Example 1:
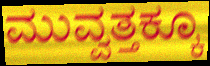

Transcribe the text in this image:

ಮುವ್ವತ್ತಕ್ಕೂ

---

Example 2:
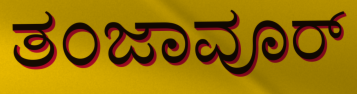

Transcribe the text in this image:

ತಂಜಾವೂರ್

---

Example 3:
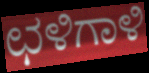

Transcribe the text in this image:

ಛಳಿಗಾಳಿ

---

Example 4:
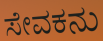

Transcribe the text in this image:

ಸೇವಕನು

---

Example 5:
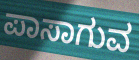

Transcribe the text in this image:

ಪಾಸಾಗುವ